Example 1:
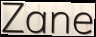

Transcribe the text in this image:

Zane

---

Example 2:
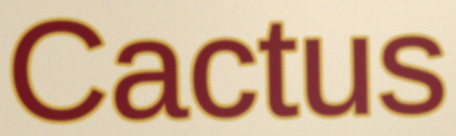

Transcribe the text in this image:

Cactus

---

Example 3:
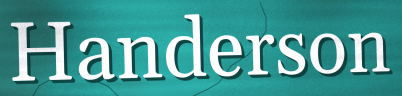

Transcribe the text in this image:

Handerson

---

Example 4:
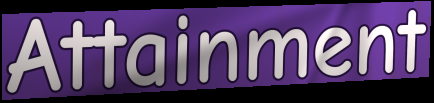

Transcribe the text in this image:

Attainment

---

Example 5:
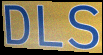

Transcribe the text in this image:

DLS